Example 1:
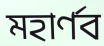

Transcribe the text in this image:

মহার্ণব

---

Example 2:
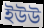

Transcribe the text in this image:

ইউউ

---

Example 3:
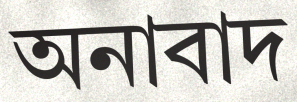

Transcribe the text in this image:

অনাবাদ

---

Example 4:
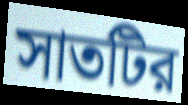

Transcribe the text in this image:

সাতটির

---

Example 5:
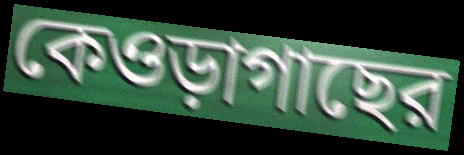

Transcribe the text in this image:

কেওড়াগাছের